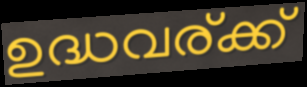
ഉദ്ധവര്ക്ക്